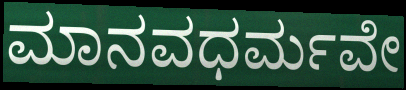
ಮಾನವಧರ್ಮವೇ